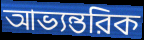
আভ্যন্তরিক